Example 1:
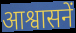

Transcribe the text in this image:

आश्वासनें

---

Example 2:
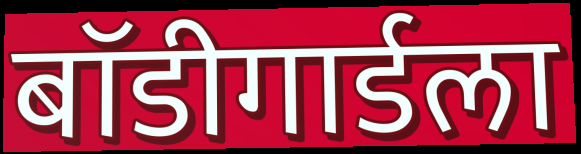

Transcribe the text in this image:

बॉडीगार्डला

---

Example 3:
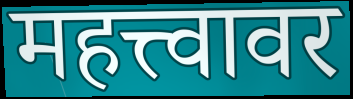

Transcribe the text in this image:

महत्त्वावर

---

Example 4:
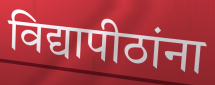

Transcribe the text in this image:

विद्यापीठांना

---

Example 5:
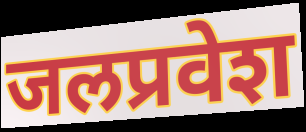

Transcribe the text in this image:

जलप्रवेश